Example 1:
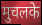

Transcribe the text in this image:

मुचलके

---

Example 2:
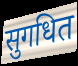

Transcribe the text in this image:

सुगधित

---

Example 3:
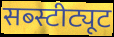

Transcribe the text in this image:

सब्स्टीट्यूट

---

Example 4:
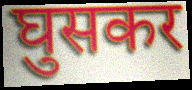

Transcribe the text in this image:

घुसकर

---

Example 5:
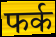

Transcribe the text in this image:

फर्क